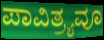
ಪಾವಿತ್ರ್ಯವೂ